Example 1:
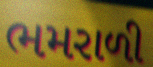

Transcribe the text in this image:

ભમરાળી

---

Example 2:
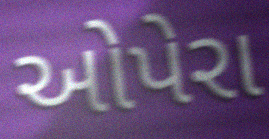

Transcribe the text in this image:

ઓપેરા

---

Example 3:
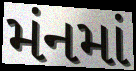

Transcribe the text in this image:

મંનમાં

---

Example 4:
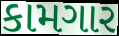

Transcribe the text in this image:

કામગાર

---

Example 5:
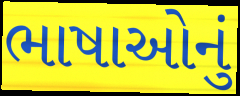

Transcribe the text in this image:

ભાષાઓનું